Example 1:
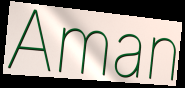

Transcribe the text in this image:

Aman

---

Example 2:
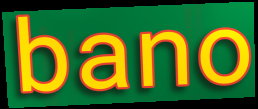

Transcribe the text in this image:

bano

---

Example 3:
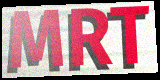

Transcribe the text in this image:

MRT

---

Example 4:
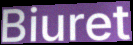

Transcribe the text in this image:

Biuret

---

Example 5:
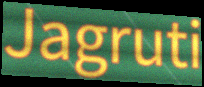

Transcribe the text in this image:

Jagruti